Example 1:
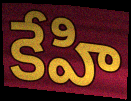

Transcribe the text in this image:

కేహి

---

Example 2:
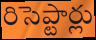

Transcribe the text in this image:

రిసెప్టార్లు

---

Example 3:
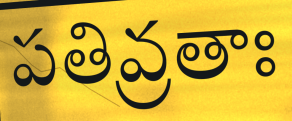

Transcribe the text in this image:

పతివ్రతాః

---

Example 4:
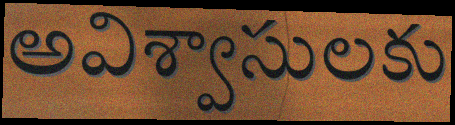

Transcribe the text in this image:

అవిశ్వాసులకు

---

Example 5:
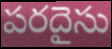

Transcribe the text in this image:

పరదైసు